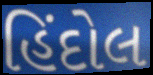
હિંદોલ